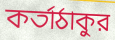
কর্তাঠাকুর